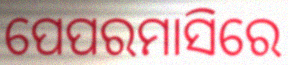
ପେପରମାସିରେ